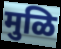
मुळि